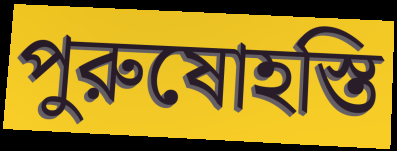
পুরুষোহস্তি